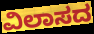
ವಿಲಾಸದ